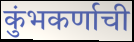
कुंभकर्णाची